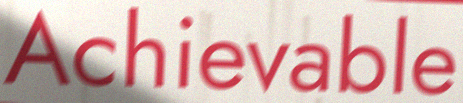
Achievable